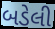
બડેલી